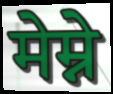
मेम्ने